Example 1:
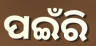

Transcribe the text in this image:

ପଇଁରି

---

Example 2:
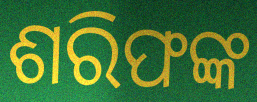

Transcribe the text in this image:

ଶରିଫଙ୍କ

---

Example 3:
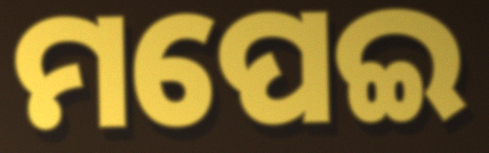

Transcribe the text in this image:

ମପେଇ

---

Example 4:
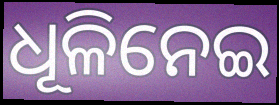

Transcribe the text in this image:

ଧୂଳିନେଇ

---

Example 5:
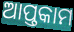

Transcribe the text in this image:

ଆପ୍ତକାମ